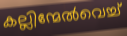
കല്ലിന്മേൽവെച്ച്